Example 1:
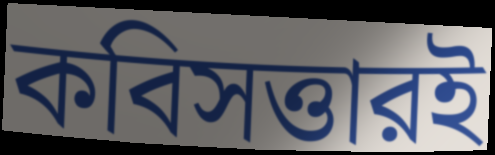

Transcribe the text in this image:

কবিসত্তারই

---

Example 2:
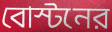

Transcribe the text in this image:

বোস্টনের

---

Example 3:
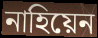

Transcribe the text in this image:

নাহিয়েন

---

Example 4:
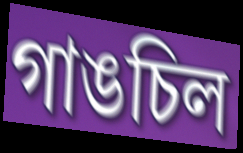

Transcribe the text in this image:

গাঙচিল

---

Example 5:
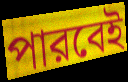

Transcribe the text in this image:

পারবেই